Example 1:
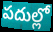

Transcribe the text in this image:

పదుల్లో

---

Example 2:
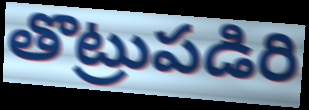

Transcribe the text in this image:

తొట్రుపడిరి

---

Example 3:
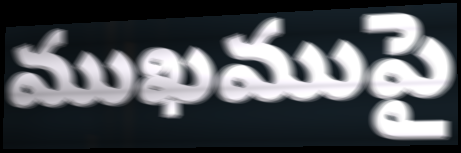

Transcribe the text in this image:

ముఖముపై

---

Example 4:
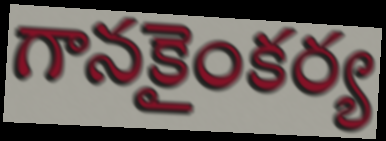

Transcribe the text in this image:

గానకైంకర్య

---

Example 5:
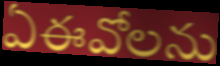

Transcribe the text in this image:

ఏఈవోలను